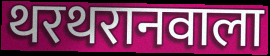
थरथरानवाला